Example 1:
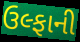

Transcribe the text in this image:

ઉલ્ફાની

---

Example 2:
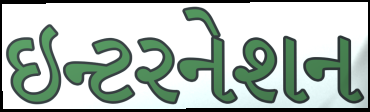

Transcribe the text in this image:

ઇન્ટરનેશન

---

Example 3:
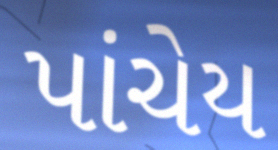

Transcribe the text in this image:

પાંચેય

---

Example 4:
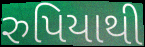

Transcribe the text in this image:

રુપિયાથી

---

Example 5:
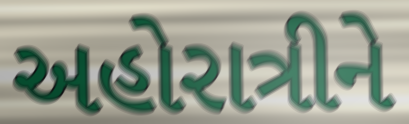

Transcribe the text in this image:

અહોરાત્રીને